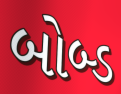
બોબ્ડ